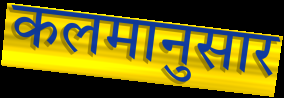
कलमानुसार